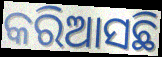
କରିଆସଛି